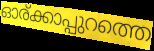
ഓര്ക്കാപ്പുറത്തെ